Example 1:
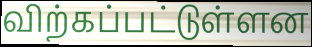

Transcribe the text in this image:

விற்கப்பட்டுள்ளன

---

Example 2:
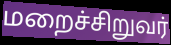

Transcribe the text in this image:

மறைச்சிறுவர்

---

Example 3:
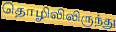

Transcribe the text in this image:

தொழிலிலிருந்து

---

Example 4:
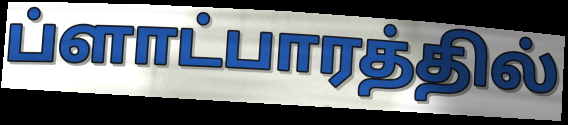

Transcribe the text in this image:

ப்ளாட்பாரத்தில்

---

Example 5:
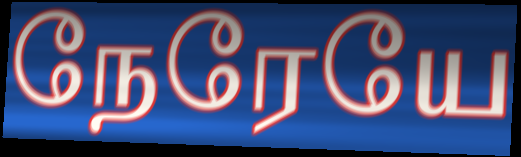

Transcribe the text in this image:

நேரேயே